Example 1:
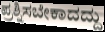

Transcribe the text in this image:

ಪ್ರಶ್ನಿಸಬೇಕಾದದ್ದು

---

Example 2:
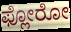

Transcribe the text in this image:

ಫ್ಲೋರೋ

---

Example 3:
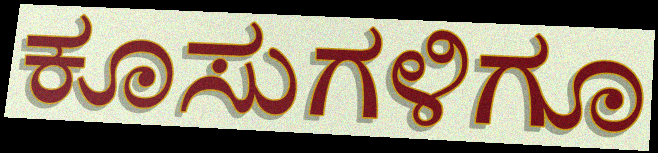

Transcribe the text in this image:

ಕೂಸುಗಳಿಗೂ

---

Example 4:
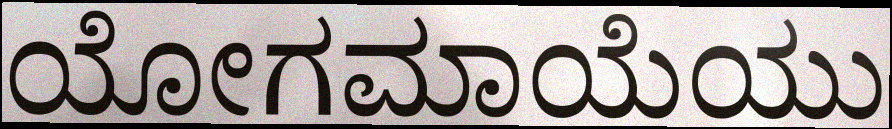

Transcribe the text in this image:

ಯೋಗಮಾಯೆಯು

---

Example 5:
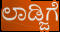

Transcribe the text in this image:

ಲಾಡ್ಜಿಗೆ